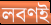
লবণই